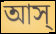
আস্